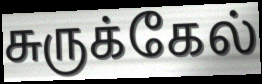
சுருக்கேல்